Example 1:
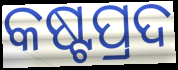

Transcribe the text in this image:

କଷ୍ଟପ୍ରଦ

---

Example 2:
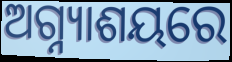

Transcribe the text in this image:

ଅଗ୍ନ୍ୟାଶୟରେ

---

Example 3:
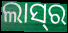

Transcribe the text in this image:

ଲାସ୍‍ର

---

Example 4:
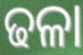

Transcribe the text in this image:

ଢଳା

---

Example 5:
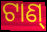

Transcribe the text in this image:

ଟାଣ୍